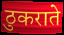
ठुकराते